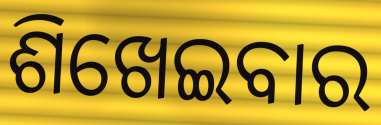
ଶିଖେଇବାର